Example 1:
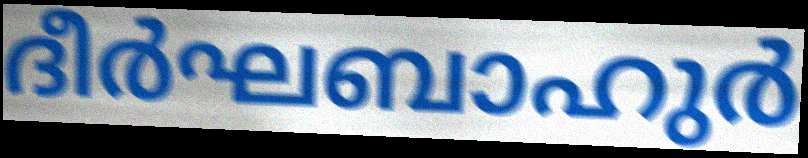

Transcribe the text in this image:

ദീർഘബാഹുർ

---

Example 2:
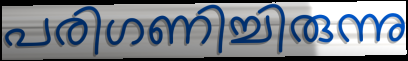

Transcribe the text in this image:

പരിഗണിച്ചിരുന്നു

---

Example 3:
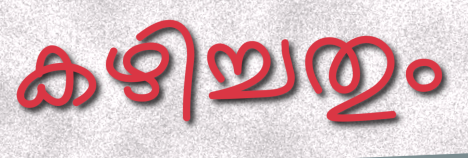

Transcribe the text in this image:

കഴിച്ചതും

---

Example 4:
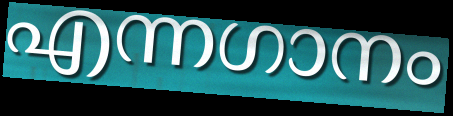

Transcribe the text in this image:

എന്നഗാനം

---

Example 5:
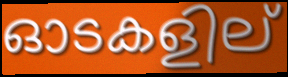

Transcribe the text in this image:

ഓടകളില്